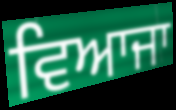
ਵਿਆਜਾ